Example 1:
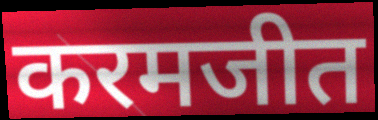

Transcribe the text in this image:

करमजीत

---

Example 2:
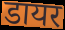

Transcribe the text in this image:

डायर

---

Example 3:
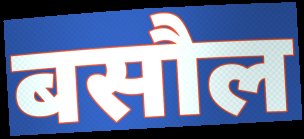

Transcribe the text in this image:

बसौल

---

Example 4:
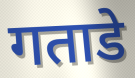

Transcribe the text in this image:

गताडे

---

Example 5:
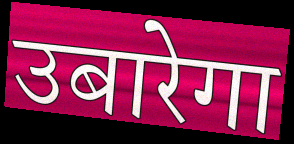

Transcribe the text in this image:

उबारेगा